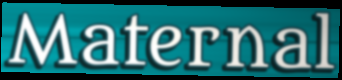
Maternal